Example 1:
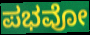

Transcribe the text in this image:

ಪಭವೋ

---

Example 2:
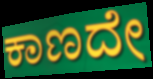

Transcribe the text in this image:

ಕಾಣದೇ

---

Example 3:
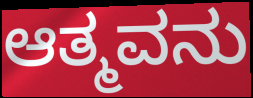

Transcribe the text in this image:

ಆತ್ಮವನು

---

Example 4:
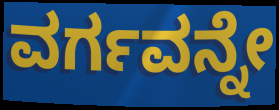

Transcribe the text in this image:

ವರ್ಗವನ್ನೇ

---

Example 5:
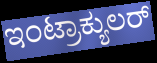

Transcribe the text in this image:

ಇಂಟ್ರಾಕ್ಯುಲರ್